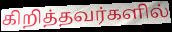
கிறித்தவர்களில்